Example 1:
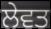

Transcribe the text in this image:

ਲੇਵਤ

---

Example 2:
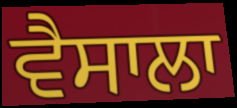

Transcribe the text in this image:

ਵੈਸਾਲਾ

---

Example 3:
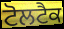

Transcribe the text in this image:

ਟੋਲਟੈਕ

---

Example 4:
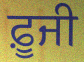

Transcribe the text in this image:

ਫ਼ੂਜੀ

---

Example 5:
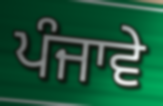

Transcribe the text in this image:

ਪੰਜਾਵੇ